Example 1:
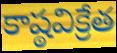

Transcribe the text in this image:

కాష్ఠవిక్రేత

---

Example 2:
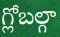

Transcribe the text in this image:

గ్లోబల్గా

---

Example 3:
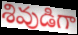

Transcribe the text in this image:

శివుడిగా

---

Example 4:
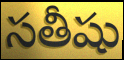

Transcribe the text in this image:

సతీషు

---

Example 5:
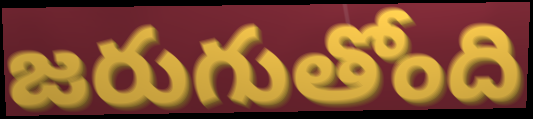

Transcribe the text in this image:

జరుగుతోంది